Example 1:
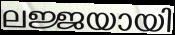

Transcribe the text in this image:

ലജ്ജയായി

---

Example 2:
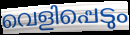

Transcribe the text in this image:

വെളിപ്പെടും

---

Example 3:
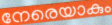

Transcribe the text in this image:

നേരെയാകും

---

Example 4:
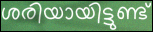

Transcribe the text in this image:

ശരിയായിട്ടുണ്ട്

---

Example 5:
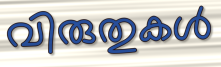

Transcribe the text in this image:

വിരുതുകൾ